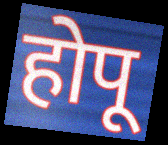
होपू